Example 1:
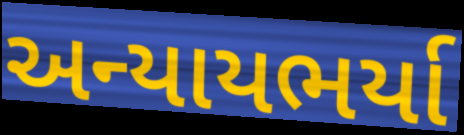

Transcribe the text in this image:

અન્યાયભર્યા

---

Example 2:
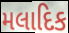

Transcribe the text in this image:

મલાદિક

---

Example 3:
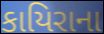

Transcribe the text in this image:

કાયિરાના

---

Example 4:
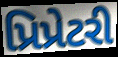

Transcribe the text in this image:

પ્રિપ્રેટરી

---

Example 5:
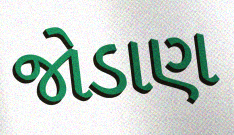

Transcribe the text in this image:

જોડાણ